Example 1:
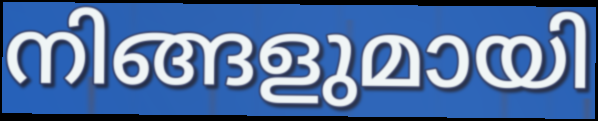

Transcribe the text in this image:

നിങ്ങളുമായി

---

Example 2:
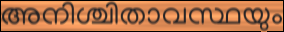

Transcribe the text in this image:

അനിശ്ചിതാവസ്ഥയും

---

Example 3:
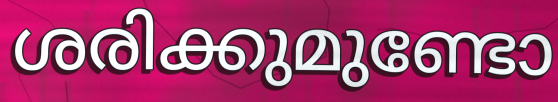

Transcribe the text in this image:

ശരിക്കുമുണ്ടോ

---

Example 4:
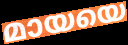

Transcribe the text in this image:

മായയെ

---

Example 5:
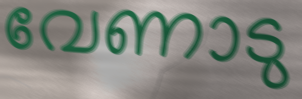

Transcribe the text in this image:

വേണാടു